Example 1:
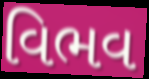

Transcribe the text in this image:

વિભવ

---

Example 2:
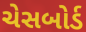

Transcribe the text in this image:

ચેસબોર્ડ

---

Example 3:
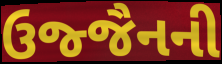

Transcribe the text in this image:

ઉજ્જૈનની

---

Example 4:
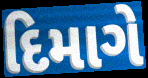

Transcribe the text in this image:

દિમાગે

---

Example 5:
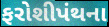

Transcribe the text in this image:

ફરોશીપંથના